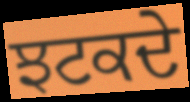
ਝਟਕਦੇ